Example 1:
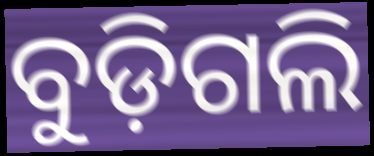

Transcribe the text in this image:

ବୁଡ଼ିଗଲି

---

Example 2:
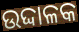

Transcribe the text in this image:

ଉଦ୍ଦାଳକ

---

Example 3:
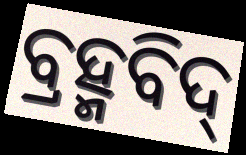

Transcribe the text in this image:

ବ୍ରହ୍ମବିଦ୍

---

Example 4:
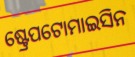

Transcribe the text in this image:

ଷ୍ଟ୍ରେପଟୋମାଇସିନ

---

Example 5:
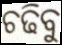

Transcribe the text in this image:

ଚଢିବୁ